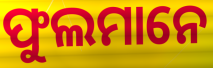
ଫୁଲମାନେ